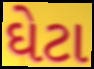
ઘેટા